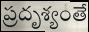
ప్రదృశ్యంతే